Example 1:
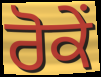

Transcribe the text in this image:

ਰੋਕੇਂ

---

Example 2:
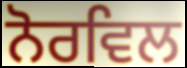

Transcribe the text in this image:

ਨੋਰਵਿਲ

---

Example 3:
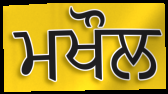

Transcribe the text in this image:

ਮਖੌਲ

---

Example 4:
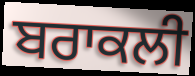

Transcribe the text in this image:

ਬਰਾਕਲੀ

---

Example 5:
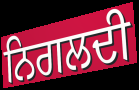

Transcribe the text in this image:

ਨਿਗਲਦੀ